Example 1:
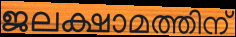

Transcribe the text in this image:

ജലക്ഷാമത്തിന്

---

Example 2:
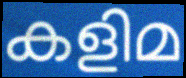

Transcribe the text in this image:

കളിമ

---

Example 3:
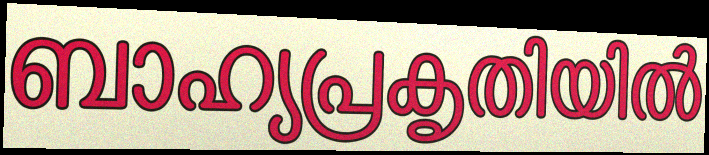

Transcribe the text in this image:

ബാഹ്യപ്രകൃതിയിൽ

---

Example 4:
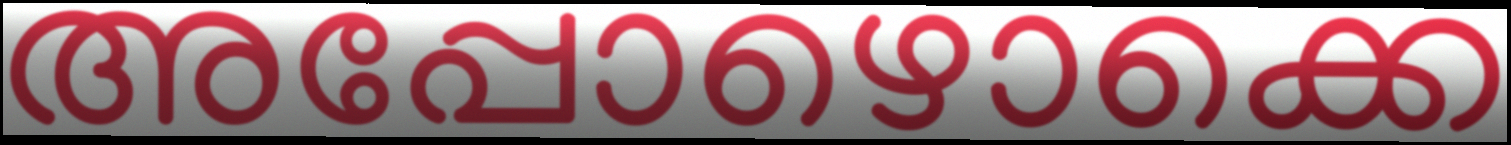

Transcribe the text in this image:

അപ്പോഴൊക്കെ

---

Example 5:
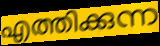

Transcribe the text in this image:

എത്തിക്കുന്ന